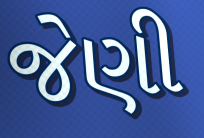
જેણી